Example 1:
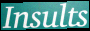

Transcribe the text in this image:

Insults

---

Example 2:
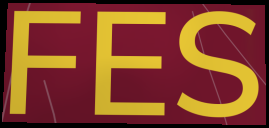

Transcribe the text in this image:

FES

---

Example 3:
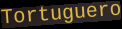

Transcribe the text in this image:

Tortuguero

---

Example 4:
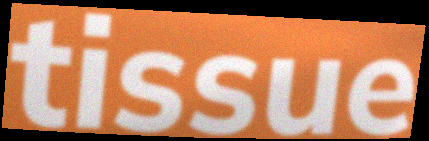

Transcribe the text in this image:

tissue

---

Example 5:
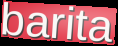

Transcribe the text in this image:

barita